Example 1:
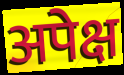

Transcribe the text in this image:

अपेक्ष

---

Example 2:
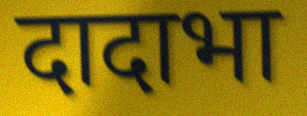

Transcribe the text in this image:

दादाभा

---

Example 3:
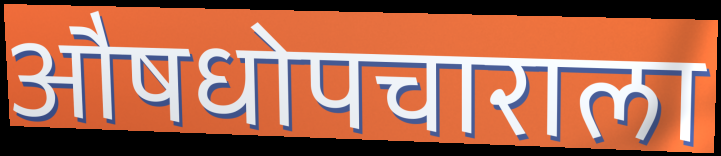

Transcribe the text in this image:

औषधोपचाराला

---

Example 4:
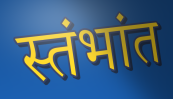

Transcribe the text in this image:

स्तंभांत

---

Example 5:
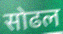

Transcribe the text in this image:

सोढल